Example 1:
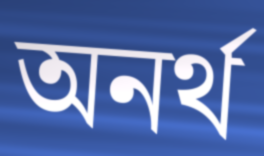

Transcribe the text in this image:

অনৰ্থ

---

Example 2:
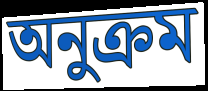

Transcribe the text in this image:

অনুক্ৰম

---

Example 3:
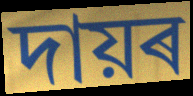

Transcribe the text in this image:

দায়ৰ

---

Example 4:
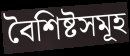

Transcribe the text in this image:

বৈশিষ্টসমূহ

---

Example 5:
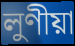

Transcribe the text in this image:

লুণীয়া